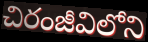
చిరంజీవిలోని